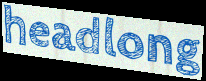
headlong